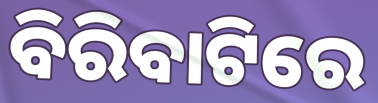
ବିରିବାଟିରେ